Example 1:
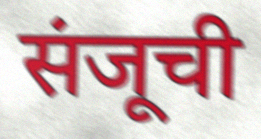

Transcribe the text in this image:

संजूची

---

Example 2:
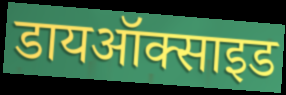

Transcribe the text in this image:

डायऑक्साइड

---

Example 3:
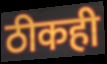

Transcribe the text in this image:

ठीकही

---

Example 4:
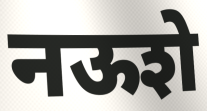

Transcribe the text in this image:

नऊशे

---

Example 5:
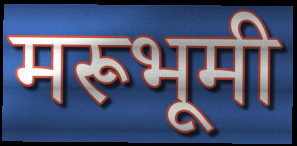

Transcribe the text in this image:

मरूभूमी